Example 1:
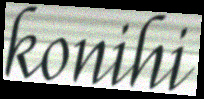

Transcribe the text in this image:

konihi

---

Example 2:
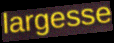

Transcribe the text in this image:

largesse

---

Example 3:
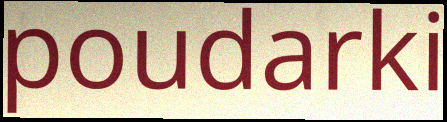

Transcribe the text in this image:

poudarki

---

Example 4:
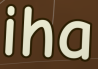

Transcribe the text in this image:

iha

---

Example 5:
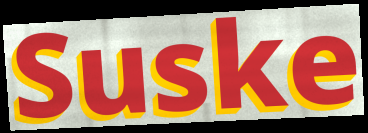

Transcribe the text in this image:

Suske